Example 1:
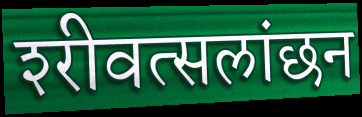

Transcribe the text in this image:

श्रीवत्सलांछन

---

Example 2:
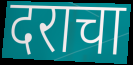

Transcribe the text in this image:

दराचा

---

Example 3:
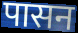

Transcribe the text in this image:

पासन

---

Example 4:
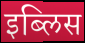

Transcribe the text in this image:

इब्लिस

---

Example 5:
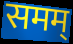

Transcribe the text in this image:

समम्